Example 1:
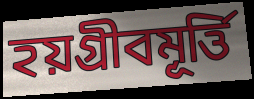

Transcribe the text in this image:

হয়গ্রীবমূর্ত্তি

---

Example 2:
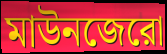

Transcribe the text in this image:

মাউনজেরো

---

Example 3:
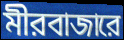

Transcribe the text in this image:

মীরবাজারে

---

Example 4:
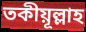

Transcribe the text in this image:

তকীয়ূল্লাহ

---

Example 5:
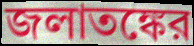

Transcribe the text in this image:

জলাতঙ্কের